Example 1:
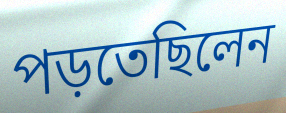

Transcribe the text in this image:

পড়তেছিলেন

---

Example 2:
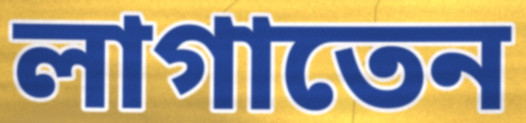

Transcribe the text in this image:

লাগাতেন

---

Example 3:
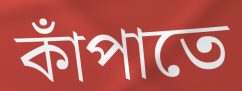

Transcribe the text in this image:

কাঁপাতে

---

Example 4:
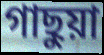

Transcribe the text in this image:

গাছুয়া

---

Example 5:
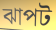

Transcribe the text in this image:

ঝাপট